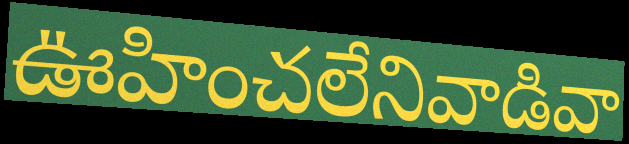
ఊహించలేనివాడివా